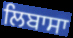
ਲਿਬਾਸਾ